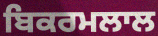
ਬਿਕਰਮਲਾਲ